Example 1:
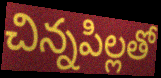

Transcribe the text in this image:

చిన్నపిల్లతో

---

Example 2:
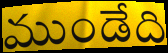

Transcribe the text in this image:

ముండేది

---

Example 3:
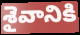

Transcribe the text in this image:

శైవానికి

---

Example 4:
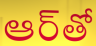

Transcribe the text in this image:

ఆర్‌తో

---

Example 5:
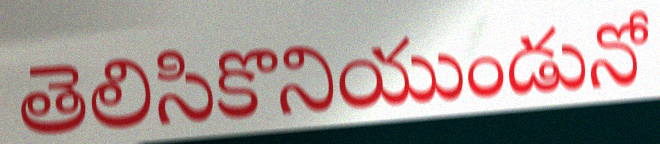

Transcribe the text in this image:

తెలిసికొనియుండునో